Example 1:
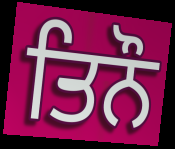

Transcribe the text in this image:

ਤਿਨੌ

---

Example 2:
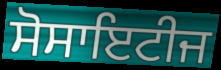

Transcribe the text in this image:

ਸੋਸਾਇਟੀਜ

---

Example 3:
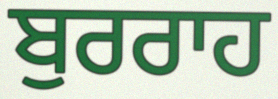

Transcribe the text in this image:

ਬੁਰਰਾਹ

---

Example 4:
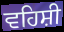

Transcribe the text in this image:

ਵਹਿਸ਼ੀ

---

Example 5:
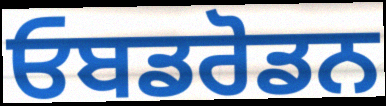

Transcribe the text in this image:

ਓਬਡਰੋਡਨ